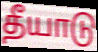
தீயாடு